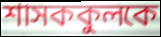
শাসককুলকে